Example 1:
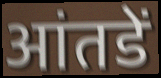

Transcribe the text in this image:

आंतडें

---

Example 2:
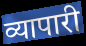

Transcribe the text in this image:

व्‍यापारी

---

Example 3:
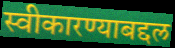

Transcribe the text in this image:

स्वीकारण्याबद्दल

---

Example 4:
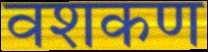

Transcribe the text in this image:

वशकण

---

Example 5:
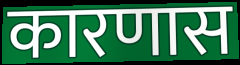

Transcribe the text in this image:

कारणास